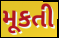
મૂકતી